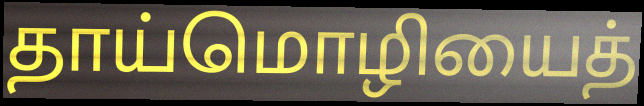
தாய்மொழியைத்